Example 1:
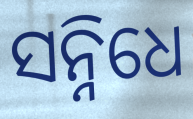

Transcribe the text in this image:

ସନ୍ନିଧେ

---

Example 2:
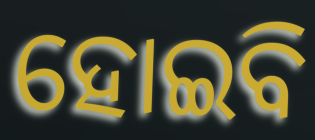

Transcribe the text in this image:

ହୋଇବି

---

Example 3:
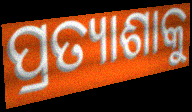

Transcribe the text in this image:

ପ୍ରତ୍ୟାଶାକୁ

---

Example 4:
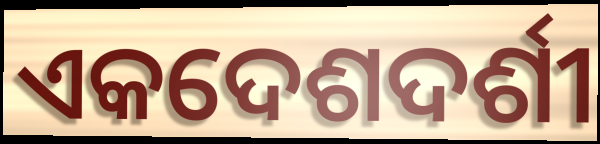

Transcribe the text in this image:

ଏକଦେଶଦର୍ଶୀ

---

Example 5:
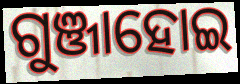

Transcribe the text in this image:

ଗୁଞ୍ଜାହୋଇ